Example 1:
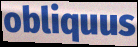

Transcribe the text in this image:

obliquus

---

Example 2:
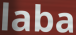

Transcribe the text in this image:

laba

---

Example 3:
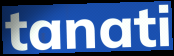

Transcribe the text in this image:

tanati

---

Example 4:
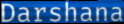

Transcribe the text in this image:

Darshana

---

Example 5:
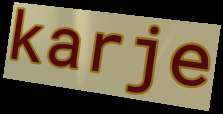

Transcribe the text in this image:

karje